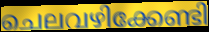
ചെലവഴിക്കേണ്ടി